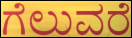
ಗೆಲುವರೆ